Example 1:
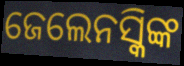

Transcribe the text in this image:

ଜେଲେନସ୍କିଙ୍କ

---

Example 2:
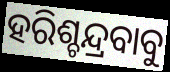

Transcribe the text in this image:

ହରିଶ୍ଚନ୍ଦ୍ରବାବୁ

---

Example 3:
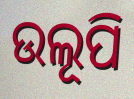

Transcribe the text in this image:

ଉଲୂପି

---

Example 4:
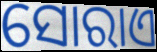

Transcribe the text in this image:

ସୋରାଏ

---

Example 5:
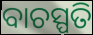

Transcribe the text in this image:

ବାଚସ୍ପତି